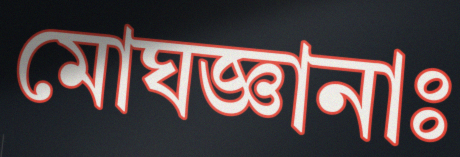
মোঘজ্ঞানাঃ